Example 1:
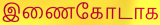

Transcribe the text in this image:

இணைகோடாக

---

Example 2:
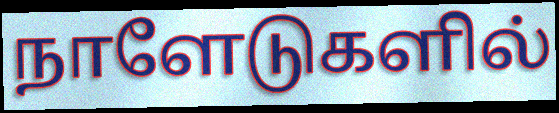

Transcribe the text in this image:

நாளேடுகளில்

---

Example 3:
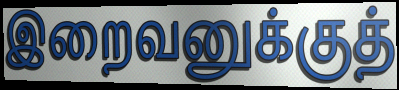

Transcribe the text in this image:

இறைவனுக்குத்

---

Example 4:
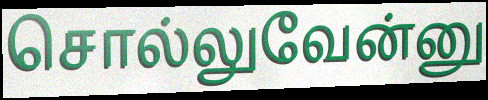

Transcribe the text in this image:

சொல்லுவேன்னு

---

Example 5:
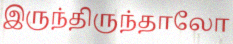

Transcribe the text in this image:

இருந்திருந்தாலோ